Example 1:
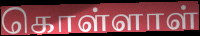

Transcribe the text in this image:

கொள்ளாள்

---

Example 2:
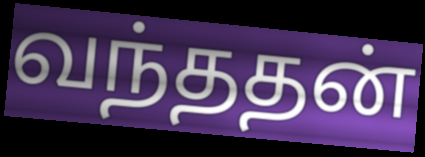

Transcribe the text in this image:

வந்ததன்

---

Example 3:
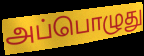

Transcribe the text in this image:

அப்பொழுது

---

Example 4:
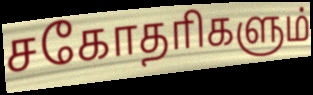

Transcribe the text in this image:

சகோதரிகளும்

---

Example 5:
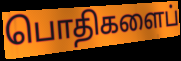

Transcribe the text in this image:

பொதிகளைப்